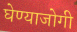
घेण्याजोगी